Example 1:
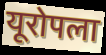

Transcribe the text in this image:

यूरोपला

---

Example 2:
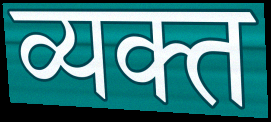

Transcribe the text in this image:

व्यक्त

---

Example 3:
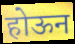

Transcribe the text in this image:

होऊन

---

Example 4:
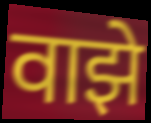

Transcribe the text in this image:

वाझे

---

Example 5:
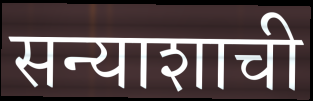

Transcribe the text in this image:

सन्याशाची